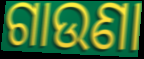
ଗାଉଣା